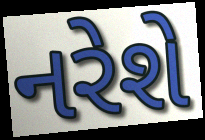
નરેશે